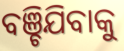
ବଞ୍ଚିଯିବାକୁ